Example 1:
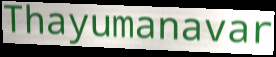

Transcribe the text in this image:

Thayumanavar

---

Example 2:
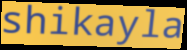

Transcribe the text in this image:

shikayla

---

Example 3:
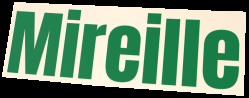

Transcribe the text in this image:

Mireille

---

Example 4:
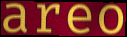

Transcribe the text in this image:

areo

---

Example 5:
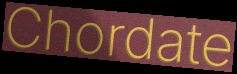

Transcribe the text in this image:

Chordate